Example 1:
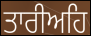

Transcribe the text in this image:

ਤਾਰੀਅਹਿ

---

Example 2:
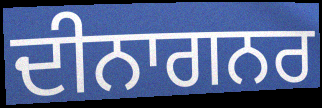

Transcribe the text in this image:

ਦੀਨਾਗਨਰ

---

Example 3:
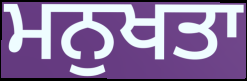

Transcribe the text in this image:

ਮਨੁਖਤਾ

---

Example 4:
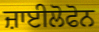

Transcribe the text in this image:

ਜ਼ਾਈਲੋਫੋਨ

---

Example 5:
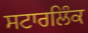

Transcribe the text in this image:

ਸਟਾਰਲਿੰਕ